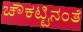
ಚೌಕಟ್ಟಿನಂತೆ